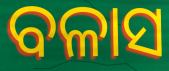
ବଳାସ